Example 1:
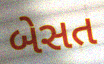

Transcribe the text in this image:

બેસત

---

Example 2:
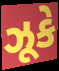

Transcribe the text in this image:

ઝૂકે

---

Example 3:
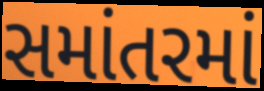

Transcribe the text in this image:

સમાંતરમાં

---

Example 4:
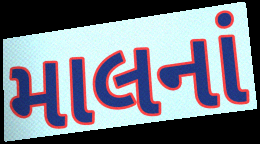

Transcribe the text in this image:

માલનાં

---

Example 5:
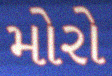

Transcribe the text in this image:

મોરો